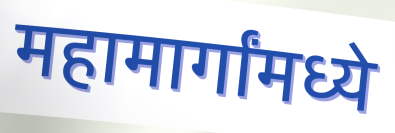
महामार्गांमध्ये